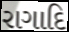
રાગાદિ